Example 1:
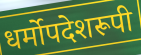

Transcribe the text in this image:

धर्मोपदेशरूपी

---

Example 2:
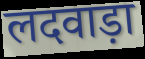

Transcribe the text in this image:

लदवाड़ा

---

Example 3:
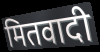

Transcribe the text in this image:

मितवादी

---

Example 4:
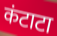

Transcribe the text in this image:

कंटाटा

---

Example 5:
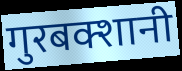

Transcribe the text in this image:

गुरबक्शानी